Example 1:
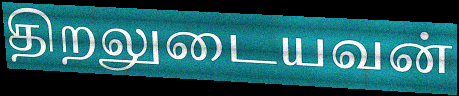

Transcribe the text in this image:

திறலுடையவன்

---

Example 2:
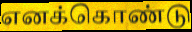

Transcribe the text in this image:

எனக்கொண்டு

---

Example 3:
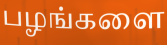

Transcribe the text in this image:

பழங்களை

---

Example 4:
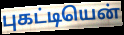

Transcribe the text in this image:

புகட்டியென்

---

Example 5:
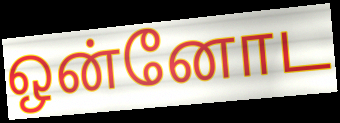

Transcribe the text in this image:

ஒன்னோட